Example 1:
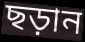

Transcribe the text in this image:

ছড়ান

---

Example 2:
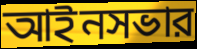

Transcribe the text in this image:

আইনসভার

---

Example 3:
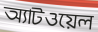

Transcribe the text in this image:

অ্যাটওয়েল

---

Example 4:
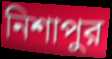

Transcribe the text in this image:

নিশাপুর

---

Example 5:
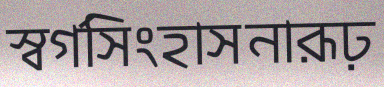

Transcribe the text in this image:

স্বর্গসিংহাসনারূঢ়